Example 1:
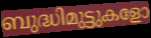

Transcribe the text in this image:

ബുദ്ധിമുട്ടുകളോ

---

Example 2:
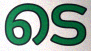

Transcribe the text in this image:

ടെ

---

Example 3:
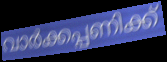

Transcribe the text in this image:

വാർക്കപ്പണിക്ക്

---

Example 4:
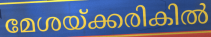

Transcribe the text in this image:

മേശയ്ക്കരികിൽ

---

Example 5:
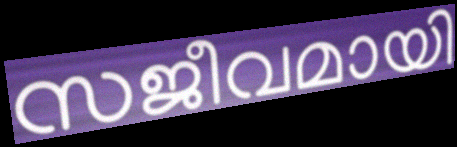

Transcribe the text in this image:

സജീവമായി